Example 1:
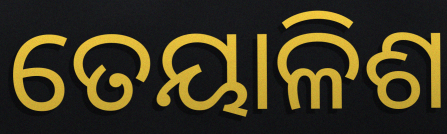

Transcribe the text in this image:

ତେୟାଳିଶ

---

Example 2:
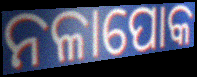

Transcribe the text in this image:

ନଳାପୋକ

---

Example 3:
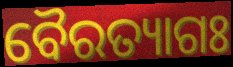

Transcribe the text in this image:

ବୈରତ୍ୟାଗଃ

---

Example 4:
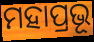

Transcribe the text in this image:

ମହାପ୍ରଭୂ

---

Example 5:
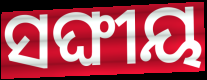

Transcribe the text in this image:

ସଙ୍ଘୀୟ